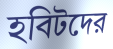
হবিটদের